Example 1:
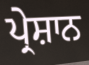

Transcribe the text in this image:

ਪ੍ਰੇਸ਼ਾਨ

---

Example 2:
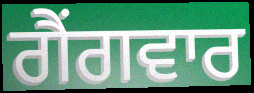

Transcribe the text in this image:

ਗੈਂਗਵਾਰ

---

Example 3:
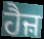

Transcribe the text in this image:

ਹੈਜ਼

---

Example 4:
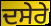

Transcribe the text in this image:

ਦਸੇਰੇ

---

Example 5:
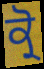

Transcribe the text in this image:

ਕ੍ਰੋ